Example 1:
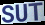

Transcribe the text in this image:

SUT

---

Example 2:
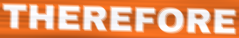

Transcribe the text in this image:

THEREFORE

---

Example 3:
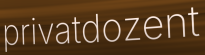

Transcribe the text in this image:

privatdozent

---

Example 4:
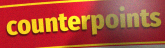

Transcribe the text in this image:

counterpoints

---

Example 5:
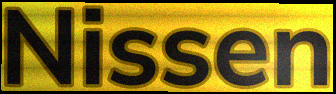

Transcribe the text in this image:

Nissen